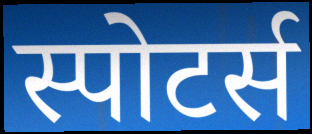
स्पोटर्स